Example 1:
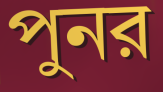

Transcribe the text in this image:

পুনর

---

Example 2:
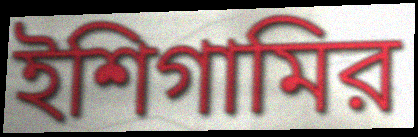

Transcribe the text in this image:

ইশিগামির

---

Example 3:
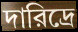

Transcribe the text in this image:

দারিদ্রে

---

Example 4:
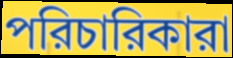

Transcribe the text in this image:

পরিচারিকারা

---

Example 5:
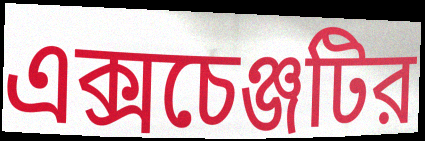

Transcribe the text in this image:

এক্সচেঞ্জটির